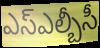
ఎస్ఎల్బీసీ